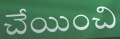
చేయించి